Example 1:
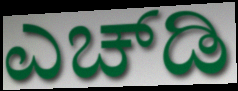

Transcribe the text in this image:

ಎಚ್‍ಡಿ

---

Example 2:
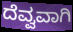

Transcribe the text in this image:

ದೆವ್ವವಾಗಿ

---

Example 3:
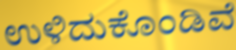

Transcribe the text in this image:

ಉಳಿದುಕೊಂಡಿವೆ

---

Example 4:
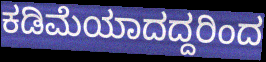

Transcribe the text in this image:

ಕಡಿಮೆಯಾದದ್ದರಿಂದ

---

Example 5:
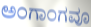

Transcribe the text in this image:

ಅಂಗಾಂಗವೂ